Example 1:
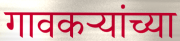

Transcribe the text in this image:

गावकर्‍यांच्या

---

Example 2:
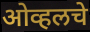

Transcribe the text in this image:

ओव्हलचे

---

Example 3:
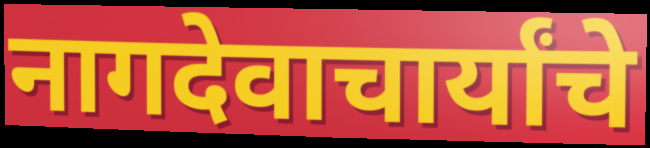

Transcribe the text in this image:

नागदेवाचार्यांचे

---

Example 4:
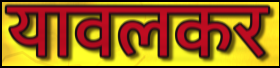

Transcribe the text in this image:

यावलकर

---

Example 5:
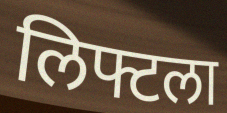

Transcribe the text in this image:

लिफ्टला